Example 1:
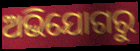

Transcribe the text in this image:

ଅଭିଯୋଗରୁ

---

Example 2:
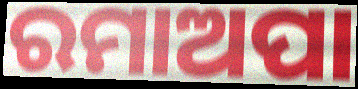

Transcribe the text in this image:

ରମାଅପା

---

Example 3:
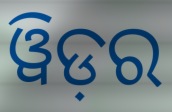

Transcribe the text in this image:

ୱିଡ଼ର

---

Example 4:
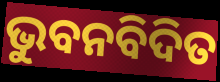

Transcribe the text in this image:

ଭୁବନବିଦିତ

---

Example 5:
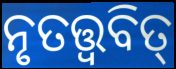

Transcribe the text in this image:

ନୃତତ୍ତ୍ୱବିତ୍